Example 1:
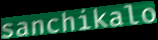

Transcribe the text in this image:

sanchikalo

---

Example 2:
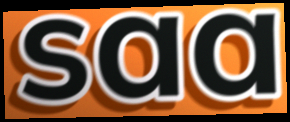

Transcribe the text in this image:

saa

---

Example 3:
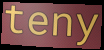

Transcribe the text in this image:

teny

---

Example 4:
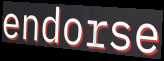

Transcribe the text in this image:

endorse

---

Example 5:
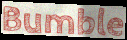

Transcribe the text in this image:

Bumble